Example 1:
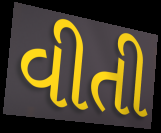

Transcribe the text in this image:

વીતી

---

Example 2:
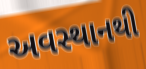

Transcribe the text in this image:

અવસ્થાનથી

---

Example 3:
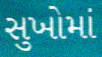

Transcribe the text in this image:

સુખોમાં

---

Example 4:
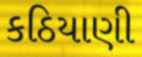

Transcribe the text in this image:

કઠિયાણી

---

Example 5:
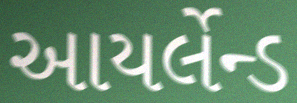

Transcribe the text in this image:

આયર્લેન્ડ